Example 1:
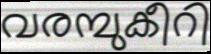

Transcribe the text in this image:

വരമ്പുകീറി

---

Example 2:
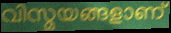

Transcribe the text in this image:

വിസ്മയങ്ങളാണ്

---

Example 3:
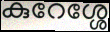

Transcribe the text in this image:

കുറേശ്ശേ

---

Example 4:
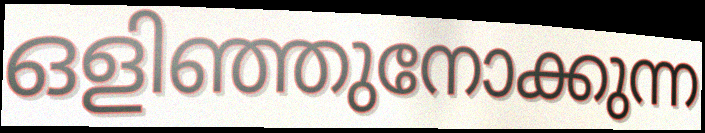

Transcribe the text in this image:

ഒളിഞ്ഞുനോക്കുന്ന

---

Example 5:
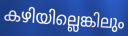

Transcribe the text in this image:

കഴിയില്ലെങ്കിലും